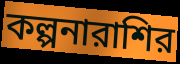
কল্পনারাশির